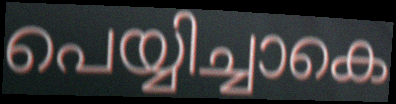
പെയ്യിച്ചാകെ